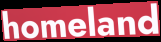
homeland